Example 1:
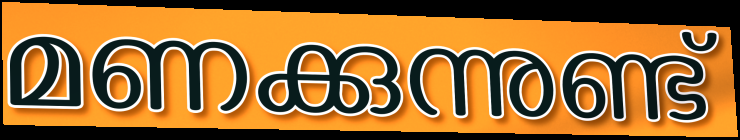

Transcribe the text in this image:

മണക്കുന്നുണ്ട്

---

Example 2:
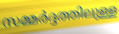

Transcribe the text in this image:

സമ്മർദ്ദത്തിലുള്ള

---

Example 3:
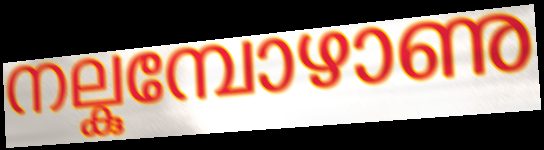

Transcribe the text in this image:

നല്കുമ്പോഴാണു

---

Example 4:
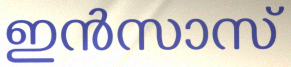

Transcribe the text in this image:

ഇൻസാസ്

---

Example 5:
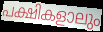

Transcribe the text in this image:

പക്ഷികളാലും